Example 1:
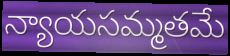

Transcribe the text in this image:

న్యాయసమ్మతమే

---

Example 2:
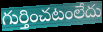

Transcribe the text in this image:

గుర్తించటంలేదు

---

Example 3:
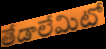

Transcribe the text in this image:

తేడాలేమిటో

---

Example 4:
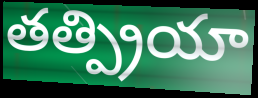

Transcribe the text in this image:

తత్ప్రియా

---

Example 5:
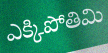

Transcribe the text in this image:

ఎక్కిపోతిమి